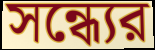
সন্ধ্যের